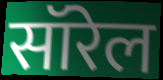
सॉरेल